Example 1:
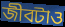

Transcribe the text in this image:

জীবটাও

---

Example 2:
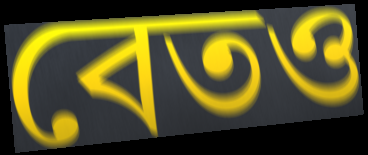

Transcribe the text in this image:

বেতও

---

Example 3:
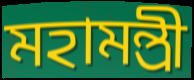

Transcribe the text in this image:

মহামন্ত্রী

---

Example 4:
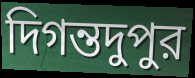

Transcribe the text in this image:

দিগন্তদুপুর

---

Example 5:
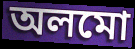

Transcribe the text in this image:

অলমো